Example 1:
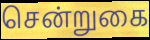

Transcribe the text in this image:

சென்றுகை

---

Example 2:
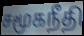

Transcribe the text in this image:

சமூகநீதி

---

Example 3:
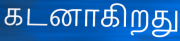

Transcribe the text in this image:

கடனாகிறது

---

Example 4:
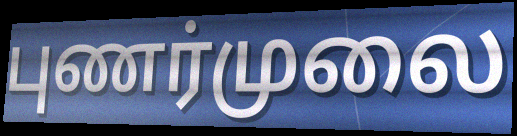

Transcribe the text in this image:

புணர்முலை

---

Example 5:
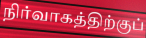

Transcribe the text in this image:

நிர்வாகத்திற்குப்